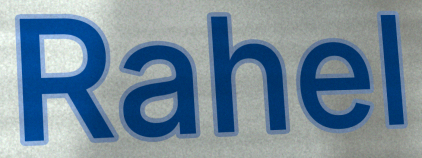
Rahel